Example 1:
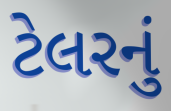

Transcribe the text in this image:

ટેલરનું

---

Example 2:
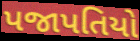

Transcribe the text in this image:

પજાપતિયો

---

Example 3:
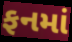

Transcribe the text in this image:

ફનમાં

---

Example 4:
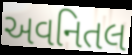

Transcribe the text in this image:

અવનિતલ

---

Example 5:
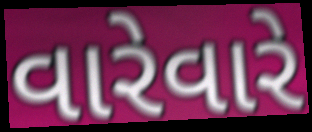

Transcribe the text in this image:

વારેવારે